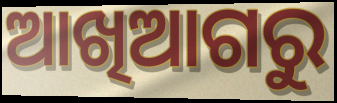
ଆଖିଆଗରୁ